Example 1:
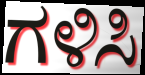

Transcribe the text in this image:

ಗಳಿಸಿ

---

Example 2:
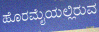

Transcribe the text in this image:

ಹೊರಮೈಯಲ್ಲಿರುವ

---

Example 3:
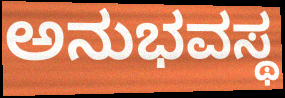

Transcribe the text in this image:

ಅನುಭವಸ್ಥ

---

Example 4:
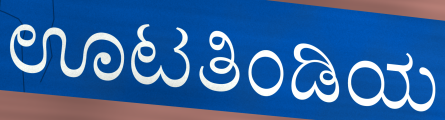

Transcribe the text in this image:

ಊಟತಿಂಡಿಯ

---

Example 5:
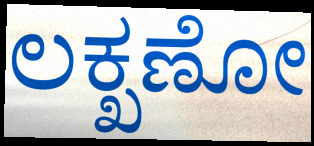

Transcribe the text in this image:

ಲಕ್ಖಣೋ